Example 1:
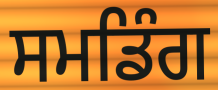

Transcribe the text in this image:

ਸਮਡਿੰਗ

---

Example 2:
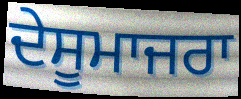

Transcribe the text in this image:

ਦੇਸੂਮਾਜਰਾ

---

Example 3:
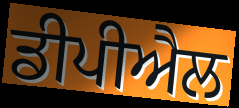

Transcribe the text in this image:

ਡੀਪੀਐਲ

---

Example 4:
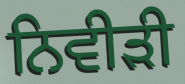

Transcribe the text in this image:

ਨਿਵੀੜੀ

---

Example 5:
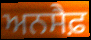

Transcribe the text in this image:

ਅਨਸੈਫ਼